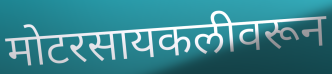
मोटरसायकलीवरून